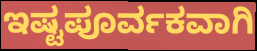
ಇಷ್ಟಪೂರ್ವಕವಾಗಿ